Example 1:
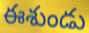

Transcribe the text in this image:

ఈశుండు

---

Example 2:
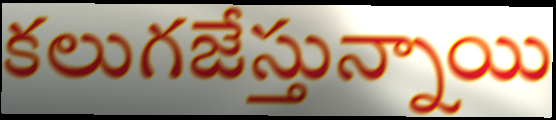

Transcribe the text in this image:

కలుగజేస్తున్నాయి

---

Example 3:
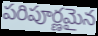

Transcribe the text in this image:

పరిపూర్ణమైన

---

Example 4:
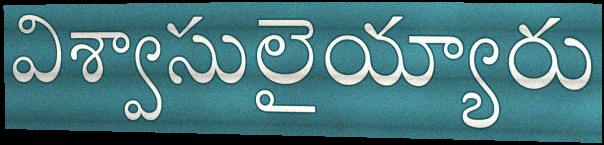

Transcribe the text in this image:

విశ్వాసులైయ్యారు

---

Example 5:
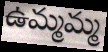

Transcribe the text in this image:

ఉమ్మమ్మ